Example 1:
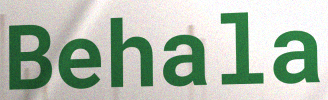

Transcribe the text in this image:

Behala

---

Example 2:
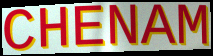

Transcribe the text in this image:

CHENAM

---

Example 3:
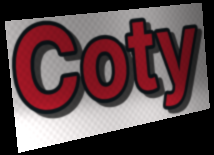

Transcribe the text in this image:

Coty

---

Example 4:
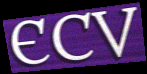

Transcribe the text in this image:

ECV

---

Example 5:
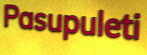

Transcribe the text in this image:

Pasupuleti